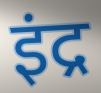
इंद्र